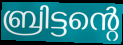
ബ്രിട്ടന്റെ